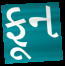
ફૂન